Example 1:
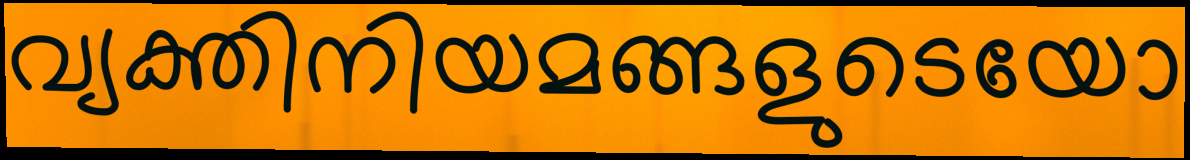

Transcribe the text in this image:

വ്യക്തിനിയമങ്ങളുടെയോ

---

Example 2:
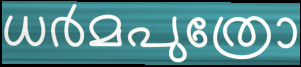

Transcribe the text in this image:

ധർമപുത്രോ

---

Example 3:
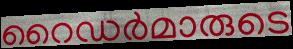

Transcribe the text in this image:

റൈഡർമാരുടെ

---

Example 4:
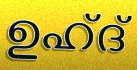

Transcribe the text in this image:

ഉഹ്ദ്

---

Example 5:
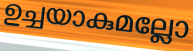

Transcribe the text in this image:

ഉച്ചയാകുമല്ലോ